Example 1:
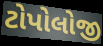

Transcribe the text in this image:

ટોપોલોજી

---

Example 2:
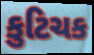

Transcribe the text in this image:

કુટિચક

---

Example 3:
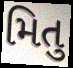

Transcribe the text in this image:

મિતુ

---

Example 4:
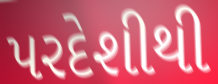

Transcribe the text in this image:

પરદેશીથી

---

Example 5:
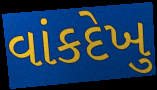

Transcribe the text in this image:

વાંકદેખુ